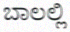
ಬಾಲಲ್ಲಿ